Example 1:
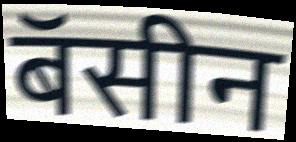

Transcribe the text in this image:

बॅसीन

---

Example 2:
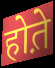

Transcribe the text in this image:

होत़े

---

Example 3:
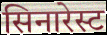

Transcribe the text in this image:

सिनारेस्ट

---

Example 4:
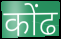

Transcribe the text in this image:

कोंढ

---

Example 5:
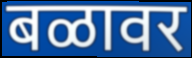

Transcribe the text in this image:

बळावर